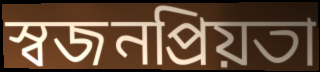
স্বজনপ্রিয়তা